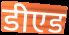
डीएड